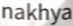
nakhya